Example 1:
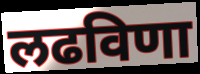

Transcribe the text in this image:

लढविणा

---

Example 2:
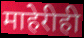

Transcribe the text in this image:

माहेरीही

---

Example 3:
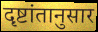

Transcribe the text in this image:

दृष्टांतानुसार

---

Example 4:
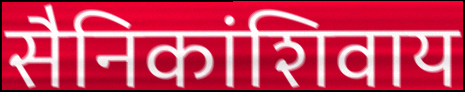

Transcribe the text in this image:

सैनिकांशिवाय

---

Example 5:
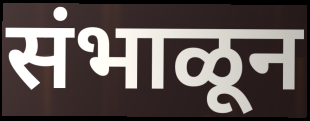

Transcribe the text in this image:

संभाळून